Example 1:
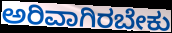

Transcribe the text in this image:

ಅರಿವಾಗಿರಬೇಕು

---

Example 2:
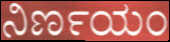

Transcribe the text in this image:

ನಿರ್ಣಯಂ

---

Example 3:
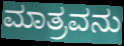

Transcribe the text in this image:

ಮಾತ್ರವನು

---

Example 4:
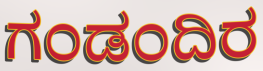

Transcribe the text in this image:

ಗಂಡಂದಿರ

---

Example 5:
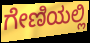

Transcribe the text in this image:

ಗೇಣಿಯಲ್ಲಿ